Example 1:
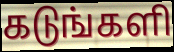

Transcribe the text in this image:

கடுங்களி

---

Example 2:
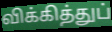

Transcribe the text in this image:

விக்கித்துப்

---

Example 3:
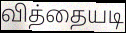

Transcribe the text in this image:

வித்தையடி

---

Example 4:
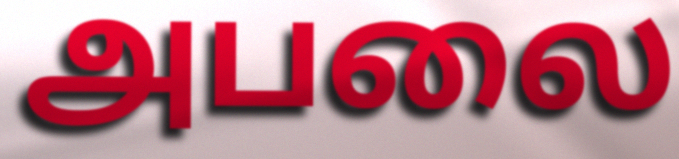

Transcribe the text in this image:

அபலை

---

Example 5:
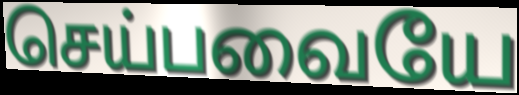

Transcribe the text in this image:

செய்பவையே